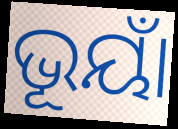
ଭୂୟାଁ